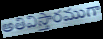
అతివిస్తారముగా